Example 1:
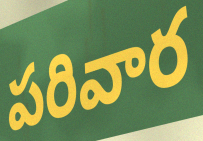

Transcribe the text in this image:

పరివార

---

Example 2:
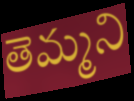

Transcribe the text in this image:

తెమ్మని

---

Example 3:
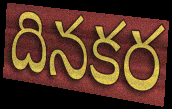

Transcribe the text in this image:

దినకర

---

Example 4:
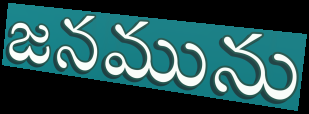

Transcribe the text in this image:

జనమును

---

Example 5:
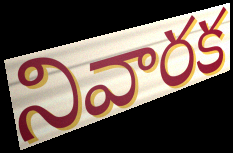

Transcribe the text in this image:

నివారక